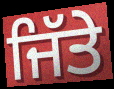
ਜਿੱਤੇ